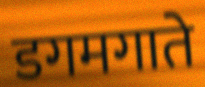
डगमगाते